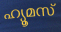
ഹ്യൂമസ്